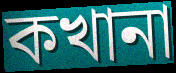
কখানা